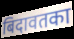
बिदावतका